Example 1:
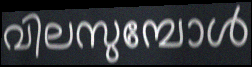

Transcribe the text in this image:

വിലസുമ്പോൾ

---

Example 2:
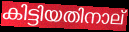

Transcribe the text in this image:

കിട്ടിയതിനാല്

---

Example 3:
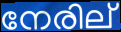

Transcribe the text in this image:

നേരില്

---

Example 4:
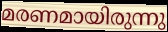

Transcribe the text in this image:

മരണമായിരുന്നു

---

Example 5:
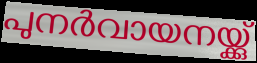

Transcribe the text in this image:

പുനർവായനയ്ക്കു്